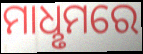
ମାଧୢମରେ